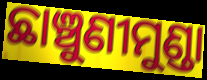
ଛାଞ୍ଚୁଣୀମୁଣ୍ଡା